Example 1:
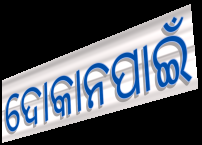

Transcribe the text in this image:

ଦୋକାନପାଇଁ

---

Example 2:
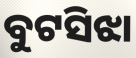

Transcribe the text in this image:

ବୁଟସିଝା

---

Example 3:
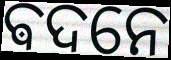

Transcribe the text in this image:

ଵଦନେ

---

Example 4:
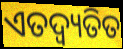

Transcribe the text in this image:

ଏତଦ୍ବ୍ୟତିତ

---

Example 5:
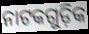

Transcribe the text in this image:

ନାଟକଗୁଡ଼ିକ